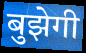
बुझेगी